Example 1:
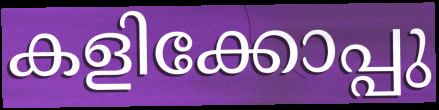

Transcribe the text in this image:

കളിക്കോപ്പു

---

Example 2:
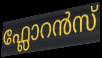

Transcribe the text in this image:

ഫ്ലോറൻസ്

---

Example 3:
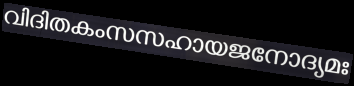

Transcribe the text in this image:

വിദിതകംസസഹായജനോദ്യമഃ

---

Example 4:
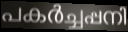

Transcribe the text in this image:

പകർച്ചപ്പനി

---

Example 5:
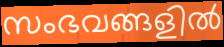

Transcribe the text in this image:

സംഭവങ്ങളിൽ